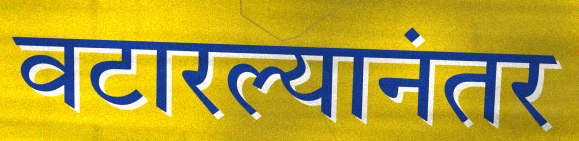
वटारल्यानंतर